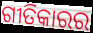
ଗୀତିକାରର